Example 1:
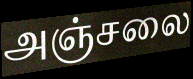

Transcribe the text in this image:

அஞ்சலை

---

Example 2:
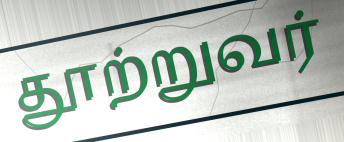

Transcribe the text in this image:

தூற்றுவர்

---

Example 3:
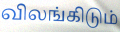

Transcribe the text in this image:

விலங்கிடும்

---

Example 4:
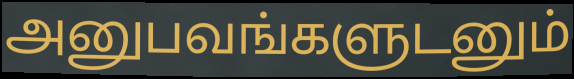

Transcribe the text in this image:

அனுபவங்களுடனும்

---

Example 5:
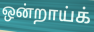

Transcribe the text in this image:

ஒன்றாய்க்